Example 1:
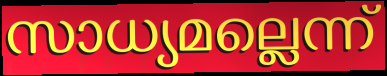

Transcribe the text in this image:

സാധ്യമല്ലെന്ന്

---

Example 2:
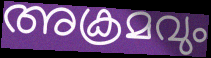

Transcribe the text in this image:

അക്രമവും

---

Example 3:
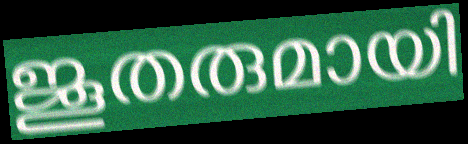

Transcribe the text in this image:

ജൂതരുമായി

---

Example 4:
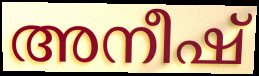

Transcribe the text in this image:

അനീഷ്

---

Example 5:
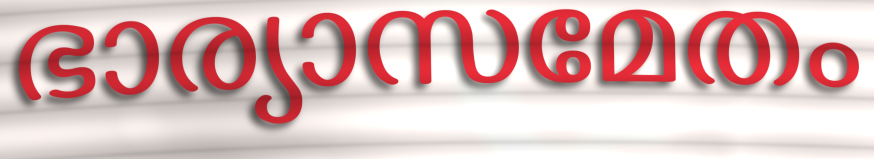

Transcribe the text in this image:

ഭാര്യാസമേതം